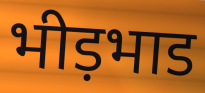
भीड़भाड